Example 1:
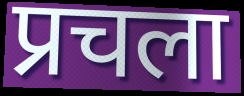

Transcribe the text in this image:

प्रचला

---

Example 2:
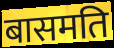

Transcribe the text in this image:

बासमति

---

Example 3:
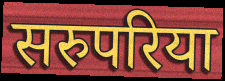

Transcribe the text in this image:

सरुपरिया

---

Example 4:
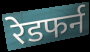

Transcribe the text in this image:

रेडफर्न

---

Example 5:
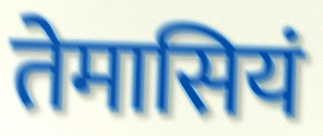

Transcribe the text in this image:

तेमासियं